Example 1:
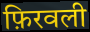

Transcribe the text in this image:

फ़िरवली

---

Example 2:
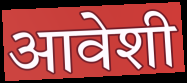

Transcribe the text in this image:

आवेशी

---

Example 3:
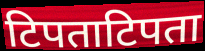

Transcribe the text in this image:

टिपताटिपता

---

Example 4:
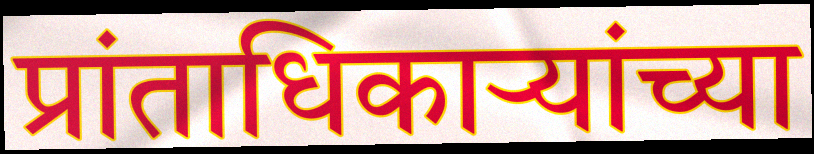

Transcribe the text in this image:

प्रांताधिकाऱ्यांच्या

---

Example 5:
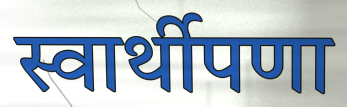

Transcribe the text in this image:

स्वार्थीपणा